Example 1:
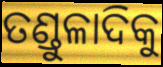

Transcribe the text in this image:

ତଣ୍ଡୁଳାଦିକୁ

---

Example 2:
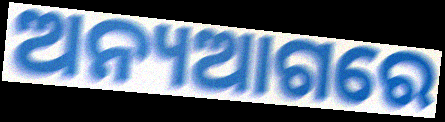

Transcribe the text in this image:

ଅନ୍ୟଆଗରେ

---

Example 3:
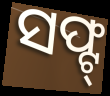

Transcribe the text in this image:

ସଫ୍ଟ୍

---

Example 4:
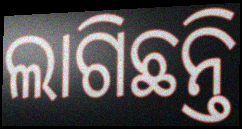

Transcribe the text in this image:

ଲାଗିଛନ୍ତି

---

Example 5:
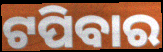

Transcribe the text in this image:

ଟପିବାର